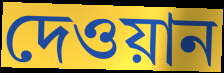
দেওয়ান